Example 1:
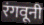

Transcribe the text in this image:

रंगवूनी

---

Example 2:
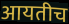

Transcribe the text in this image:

आयतीच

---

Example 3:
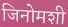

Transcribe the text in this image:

जिनोमशी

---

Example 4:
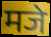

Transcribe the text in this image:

मजे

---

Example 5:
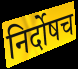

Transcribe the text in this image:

निर्दोषच